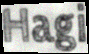
Hagi